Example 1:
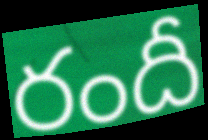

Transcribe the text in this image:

రందీ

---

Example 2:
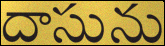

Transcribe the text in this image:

దాసును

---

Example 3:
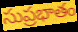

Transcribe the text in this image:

సుప్రభాతం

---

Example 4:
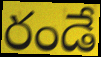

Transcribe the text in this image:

రండే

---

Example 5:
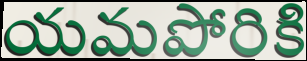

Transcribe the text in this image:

యమపోరికి